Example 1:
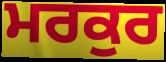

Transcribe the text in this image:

ਮਰਕੁਰ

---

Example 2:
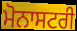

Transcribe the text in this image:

ਮੋਨਾਸਟਰੀ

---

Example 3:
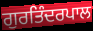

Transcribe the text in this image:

ਗੁਰਤਿੰਦਰਪਾਲ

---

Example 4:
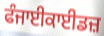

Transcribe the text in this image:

ਫੰਜਾਈਕਾਈਡਜ਼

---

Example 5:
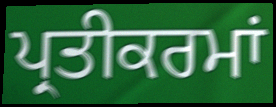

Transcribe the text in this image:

ਪ੍ਰਤੀਕਰਮਾਂ